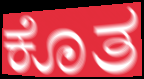
ಕೊತ